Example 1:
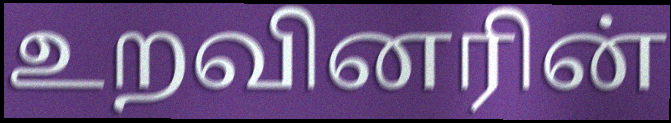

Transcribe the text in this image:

உறவினரின்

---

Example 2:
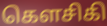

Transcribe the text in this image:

கௌசிகி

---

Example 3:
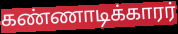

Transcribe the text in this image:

கண்ணாடிக்காரர்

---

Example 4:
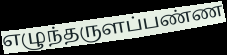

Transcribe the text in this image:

எழுந்தருளப்பண்ண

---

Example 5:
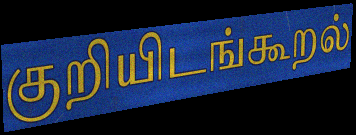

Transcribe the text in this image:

குறியிடங்கூறல்